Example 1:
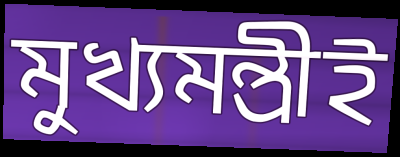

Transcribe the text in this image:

মুখ্যমন্ত্রীই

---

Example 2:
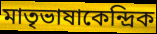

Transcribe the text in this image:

মাতৃভাষাকেন্দ্রিক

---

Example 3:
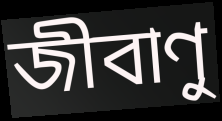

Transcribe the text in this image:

জীবাণু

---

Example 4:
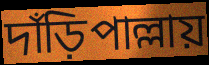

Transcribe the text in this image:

দাঁড়িপাল্লায়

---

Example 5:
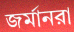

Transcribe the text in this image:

জর্মানরা